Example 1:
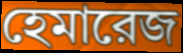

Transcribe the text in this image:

হেমারেজ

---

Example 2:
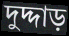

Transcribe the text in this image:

দুদ্দাড়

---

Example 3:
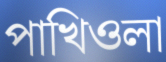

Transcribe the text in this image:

পাখিওলা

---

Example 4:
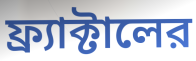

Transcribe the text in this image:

ফ্র্যাক্টালের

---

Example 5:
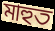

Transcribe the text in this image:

মাহুত